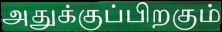
அதுக்குப்பிறகும்